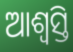
ଆଶ୍ଵସ୍ତି